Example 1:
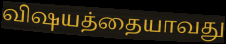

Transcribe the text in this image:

விஷயத்தையாவது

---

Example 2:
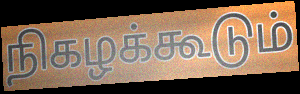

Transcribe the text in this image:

நிகழக்கூடும்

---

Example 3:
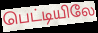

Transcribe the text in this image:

பெட்டியிலே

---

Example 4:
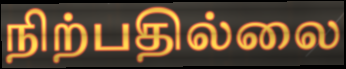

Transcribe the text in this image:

நிற்பதில்லை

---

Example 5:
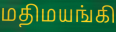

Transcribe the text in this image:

மதிமயங்கி